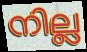
നില്ല